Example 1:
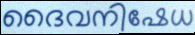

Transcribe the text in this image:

ദൈവനിഷേധ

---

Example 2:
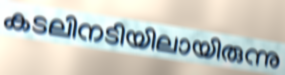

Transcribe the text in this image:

കടലിനടിയിലായിരുന്നു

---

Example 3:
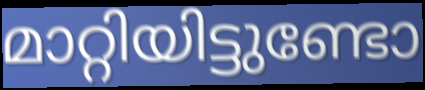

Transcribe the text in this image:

മാറ്റിയിട്ടുണ്ടോ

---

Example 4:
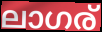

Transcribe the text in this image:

ലാഗര്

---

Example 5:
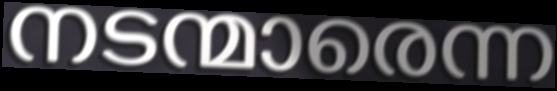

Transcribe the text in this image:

നടന്മാരെന്ന